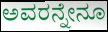
ಅವರನ್ನೇನೂ